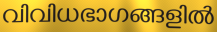
വിവിധഭാഗങ്ങളിൽ